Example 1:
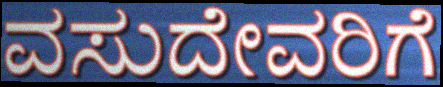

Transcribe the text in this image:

ವಸುದೇವರಿಗೆ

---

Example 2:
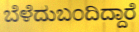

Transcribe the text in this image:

ಬೆಳೆದುಬಂದಿದ್ದಾರೆ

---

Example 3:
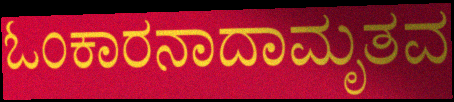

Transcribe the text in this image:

ಓಂಕಾರನಾದಾಮೃತವ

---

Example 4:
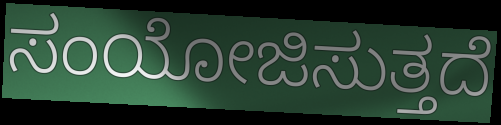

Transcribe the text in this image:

ಸಂಯೋಜಿಸುತ್ತದೆ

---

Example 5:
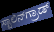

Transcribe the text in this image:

ಸ್ಟಾಲಿನ್‌ಗ್ರಾಡ್